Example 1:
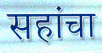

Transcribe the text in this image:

सहांचा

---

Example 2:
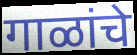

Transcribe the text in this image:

गाळांचे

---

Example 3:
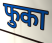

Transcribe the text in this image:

फुका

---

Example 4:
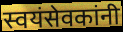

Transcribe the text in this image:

स्वयंसेवकांनी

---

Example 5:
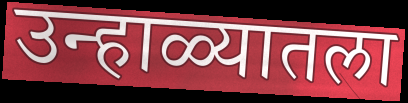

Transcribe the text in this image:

उन्हाळ्यातला